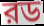
রড